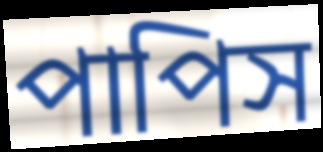
পাপিস